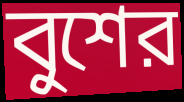
বুশের